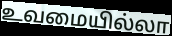
உவமையில்லா